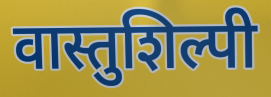
वास्तुशिल्पी